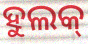
ହୁଲକ୍